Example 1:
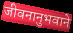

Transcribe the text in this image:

जीवनानुभवाने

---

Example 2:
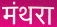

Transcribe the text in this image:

मंथरा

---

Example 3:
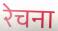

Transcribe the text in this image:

रेचना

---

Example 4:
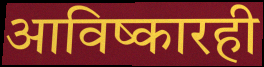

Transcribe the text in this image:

आविष्कारही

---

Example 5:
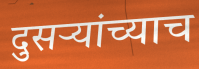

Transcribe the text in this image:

दुसऱ्यांच्याच